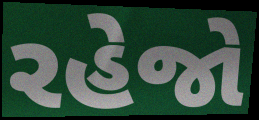
રહેજો